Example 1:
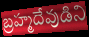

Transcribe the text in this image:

బ్రహ్మదేవుడిని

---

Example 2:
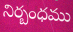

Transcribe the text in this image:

నిర్బంధము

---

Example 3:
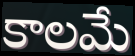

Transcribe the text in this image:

కాలమే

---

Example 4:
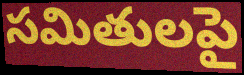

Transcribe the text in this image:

సమితులపై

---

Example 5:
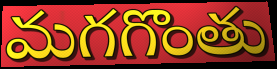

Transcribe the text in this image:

మగగొంతు